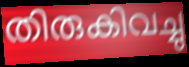
തിരുകിവച്ചു